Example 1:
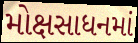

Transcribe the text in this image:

મોક્ષસાધનમાં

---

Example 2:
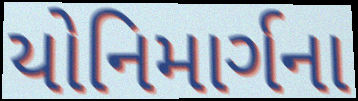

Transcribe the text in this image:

યોનિમાર્ગના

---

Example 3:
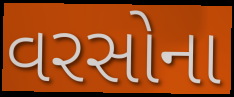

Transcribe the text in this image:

વરસોના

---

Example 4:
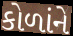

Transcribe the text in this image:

કોળાંને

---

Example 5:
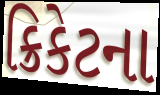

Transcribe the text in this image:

ક્રિકેટના